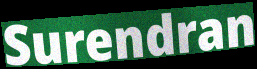
Surendran